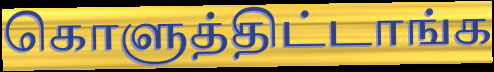
கொளுத்திட்டாங்க